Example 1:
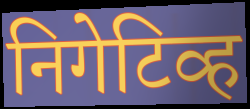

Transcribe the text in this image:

निगेटिव्ह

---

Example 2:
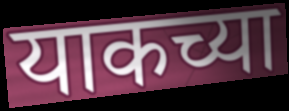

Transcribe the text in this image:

याकच्या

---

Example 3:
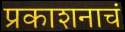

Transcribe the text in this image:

प्रकाशनाचं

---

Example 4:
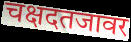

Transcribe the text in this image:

चक्षदतजावर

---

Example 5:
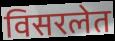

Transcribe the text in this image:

विसरलेत